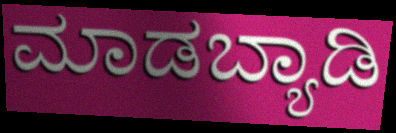
ಮಾಡಬ್ಯಾಡಿ